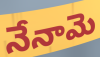
నేనామె